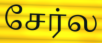
சேர்ல